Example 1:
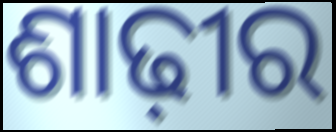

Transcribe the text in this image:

ଶାଢ଼ୀର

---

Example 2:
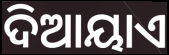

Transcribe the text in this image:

ଦିଆୟାଏ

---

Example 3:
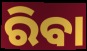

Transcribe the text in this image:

ରିବା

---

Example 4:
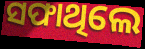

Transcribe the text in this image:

ସଫାଥିଲେ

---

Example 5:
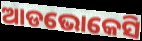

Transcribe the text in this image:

ଆଡଭୋକେସି